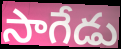
సాగేడు